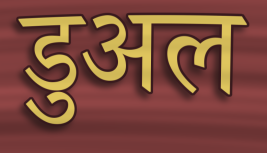
डुअल